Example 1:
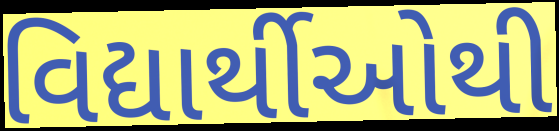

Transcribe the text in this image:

વિદ્યાર્થીઓથી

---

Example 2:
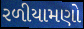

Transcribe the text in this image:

રળીયામણો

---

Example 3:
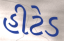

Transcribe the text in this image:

હીટેડ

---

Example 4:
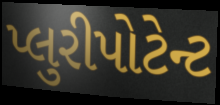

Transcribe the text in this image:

પ્લુરીપોટેન્ટ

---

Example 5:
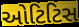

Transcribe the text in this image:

ઓટિટિસ